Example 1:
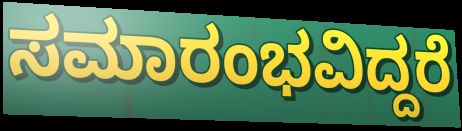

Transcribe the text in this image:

ಸಮಾರಂಭವಿದ್ದರೆ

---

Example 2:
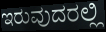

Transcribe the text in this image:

ಇರುವುದರಲ್ಲಿ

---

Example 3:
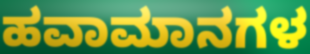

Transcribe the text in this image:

ಹವಾಮಾನಗಳ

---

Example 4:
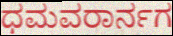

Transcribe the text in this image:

ಧಮವರಾರ್ನಗ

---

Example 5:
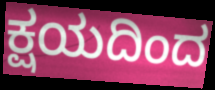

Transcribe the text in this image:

ಕ್ಷಯದಿಂದ